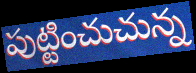
పుట్టించుచున్న